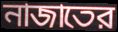
নাজাতের